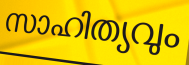
സാഹിത്യവും